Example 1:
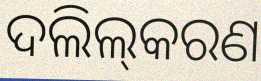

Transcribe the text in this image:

ଦଲିଲ୍‌କରଣ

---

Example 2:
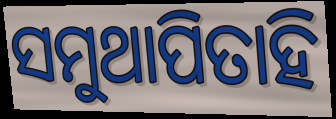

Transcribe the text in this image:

ସମୁଥାପିତାହି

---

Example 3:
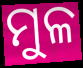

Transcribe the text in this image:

ମୁଳ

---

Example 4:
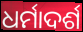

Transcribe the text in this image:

ଧର୍ମାଦର୍ଶ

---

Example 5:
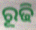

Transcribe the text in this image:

ରୂଢି